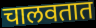
चालवतात